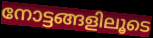
നോട്ടങ്ങളിലൂടെ